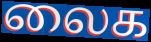
லைக